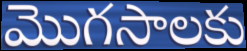
మొగసాలకు